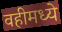
वहीमध्ये